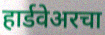
हार्डवेअरचा